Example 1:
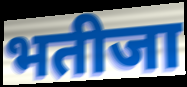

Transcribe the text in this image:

भतीजा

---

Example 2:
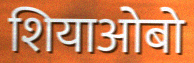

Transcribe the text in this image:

शियाओबो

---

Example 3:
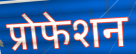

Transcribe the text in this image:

प्रोफेशन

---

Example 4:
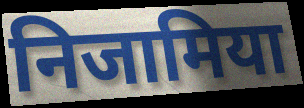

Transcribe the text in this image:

निजामिया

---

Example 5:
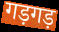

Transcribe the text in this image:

गड़गड़